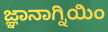
ಜ್ಞಾನಾಗ್ನಿಯಿಂ